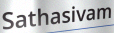
Sathasivam